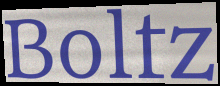
Boltz